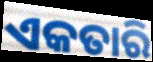
ଏକତାରି